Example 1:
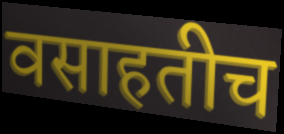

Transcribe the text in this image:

वसाहतीच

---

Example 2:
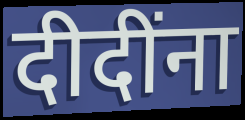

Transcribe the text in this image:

दीदींना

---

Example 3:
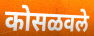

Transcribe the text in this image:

कोसळवले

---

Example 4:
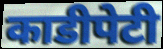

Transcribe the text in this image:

काडीपेटी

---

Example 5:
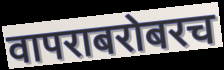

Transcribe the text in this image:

वापराबरोबरच